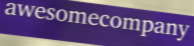
awesomecompany